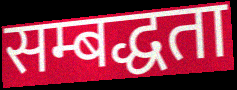
सम्‍बद्धता